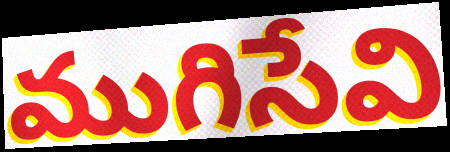
ముగిసేవి